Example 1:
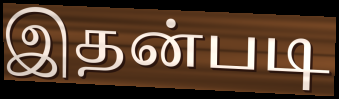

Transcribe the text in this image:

இதன்படி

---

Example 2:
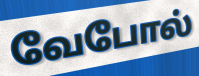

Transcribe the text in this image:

வேபோல்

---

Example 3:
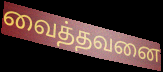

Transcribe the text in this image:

வைத்தவனை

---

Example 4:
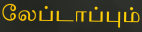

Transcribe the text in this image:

லேப்டாப்பும்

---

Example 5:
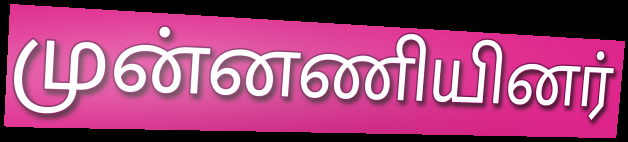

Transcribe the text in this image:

முன்னணியினர்